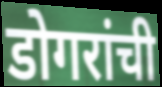
डोगरांची